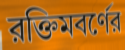
রক্তিমবর্ণের